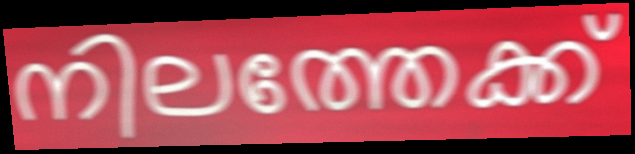
നിലത്തേക്ക്